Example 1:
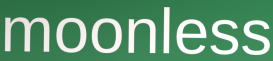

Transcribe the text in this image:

moonless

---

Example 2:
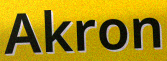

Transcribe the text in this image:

Akron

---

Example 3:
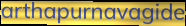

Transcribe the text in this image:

arthapurnavagide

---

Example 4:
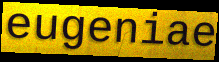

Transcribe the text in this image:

eugeniae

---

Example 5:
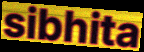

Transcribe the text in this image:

sibhita